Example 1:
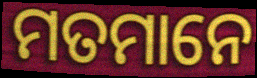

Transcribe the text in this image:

ମତମାନେ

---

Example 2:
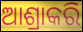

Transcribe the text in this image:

ଆଶ୍ରାକରି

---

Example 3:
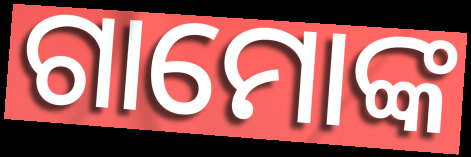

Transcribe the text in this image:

ଗାମୋଙ୍କ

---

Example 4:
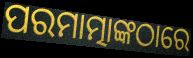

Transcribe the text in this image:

ପରମାତ୍ମାଙ୍କଠାରେ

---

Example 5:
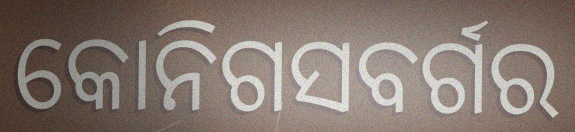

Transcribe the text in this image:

କୋନିଗସବର୍ଗର